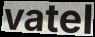
vatel